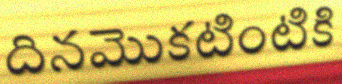
దినమొకటింటికి